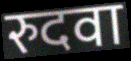
रुदवा